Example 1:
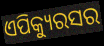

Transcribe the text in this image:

ଏପିକ୍ୟୁରସର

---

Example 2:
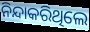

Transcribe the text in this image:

ନିନ୍ଦାକରିଥିଲେ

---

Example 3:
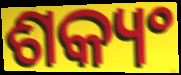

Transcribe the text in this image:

ଶକ୍ୟଂ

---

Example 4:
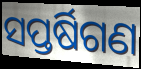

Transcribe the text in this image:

ସପ୍ତର୍ଷିଗଣ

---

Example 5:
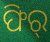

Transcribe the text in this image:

ଫିର୍